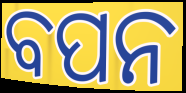
ବପନ